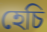
হেচি